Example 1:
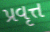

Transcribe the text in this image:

પ્રવૃત્ત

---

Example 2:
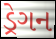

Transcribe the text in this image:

ડ્રેગન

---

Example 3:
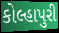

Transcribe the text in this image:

કોલ્હાપુરી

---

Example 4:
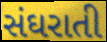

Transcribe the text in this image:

સંઘરાતી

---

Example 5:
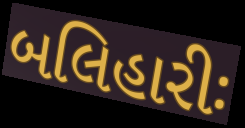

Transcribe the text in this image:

બલિહારીઃ